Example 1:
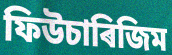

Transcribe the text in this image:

ফিউচাৰিজিম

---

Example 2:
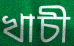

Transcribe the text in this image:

খাচী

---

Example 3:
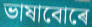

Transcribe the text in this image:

ভাষাবোৰে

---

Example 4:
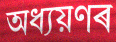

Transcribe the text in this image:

অধ্যয়ণৰ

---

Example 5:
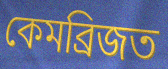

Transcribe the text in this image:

কেমব্ৰিজত